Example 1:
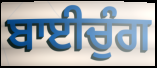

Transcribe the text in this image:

ਬਾਈਚੁੰਗ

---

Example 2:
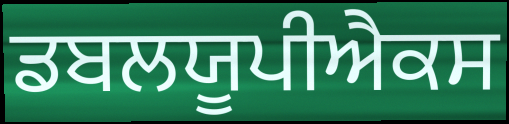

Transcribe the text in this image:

ਡਬਲਯੂਪੀਐਕਸ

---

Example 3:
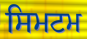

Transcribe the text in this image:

ਸਿਮਟਮ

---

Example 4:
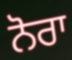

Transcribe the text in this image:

ਨੋਰਾ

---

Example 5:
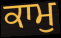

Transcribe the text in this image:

ਕਾਮੁ